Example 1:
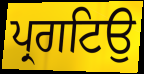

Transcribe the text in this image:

ਪ੍ਰਗਟਿਉ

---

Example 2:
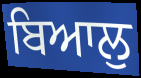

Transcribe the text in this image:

ਬਿਆਲੁ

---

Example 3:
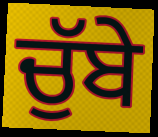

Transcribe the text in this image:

ਚੁੱਬੇ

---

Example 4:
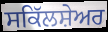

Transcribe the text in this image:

ਸਕਿੱਲਸ਼ੇਅਰ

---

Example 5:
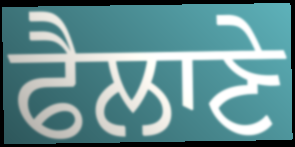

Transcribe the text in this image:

ਫੈਲਾਣੇ